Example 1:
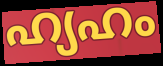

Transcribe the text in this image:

ഹ്യഹം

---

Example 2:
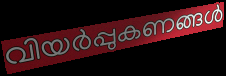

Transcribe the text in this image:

വിയർപ്പുകണങ്ങൾ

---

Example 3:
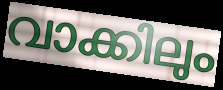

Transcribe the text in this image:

വാക്കിലും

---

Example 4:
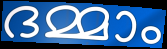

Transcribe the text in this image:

ദമ്മാം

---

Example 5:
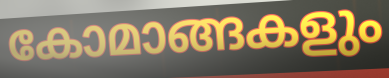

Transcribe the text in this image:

കോമാങ്ങകളും